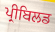
ਪ੍ਰੀਬਿਲਡ